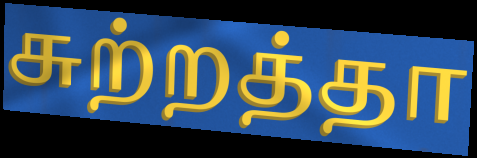
சுற்றத்தா